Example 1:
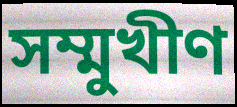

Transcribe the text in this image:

সম্মুখীণ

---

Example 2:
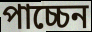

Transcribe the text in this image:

পাচ্চেন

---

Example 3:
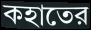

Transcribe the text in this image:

কহাতের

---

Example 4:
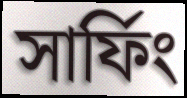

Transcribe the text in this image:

সার্ফিং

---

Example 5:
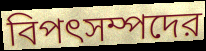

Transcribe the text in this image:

বিপৎসম্পদের